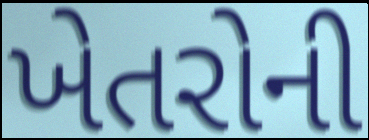
ખેતરોની